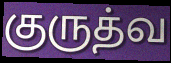
குருத்வ